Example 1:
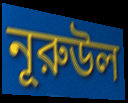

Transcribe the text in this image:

নূরুউল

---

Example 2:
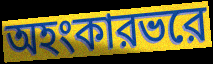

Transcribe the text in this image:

অহংকারভরে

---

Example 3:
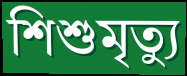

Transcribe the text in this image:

শিশুমৃত্যু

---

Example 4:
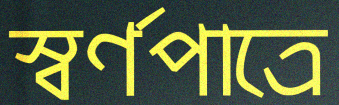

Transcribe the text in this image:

স্বর্ণপাত্রে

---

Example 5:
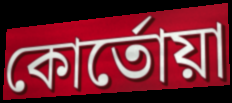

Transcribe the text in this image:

কোর্তোয়া